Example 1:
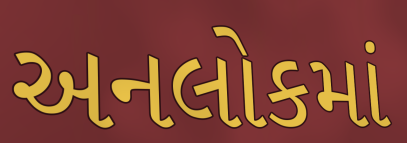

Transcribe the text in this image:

અનલોકમાં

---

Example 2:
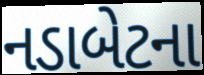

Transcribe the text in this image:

નડાબેટના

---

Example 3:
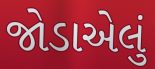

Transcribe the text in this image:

જોડાએલું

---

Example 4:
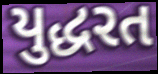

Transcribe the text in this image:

યુદ્ધરત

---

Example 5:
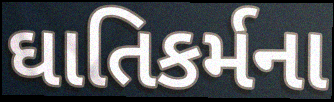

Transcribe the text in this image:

ઘાતિકર્મના